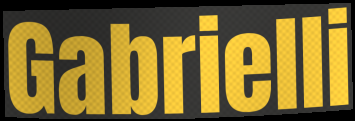
Gabrielli